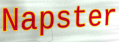
Napster